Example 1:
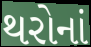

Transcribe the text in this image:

થરોનાં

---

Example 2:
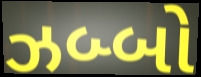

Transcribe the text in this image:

ઝબ્બો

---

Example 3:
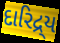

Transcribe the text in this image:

દારિદ્ર્ય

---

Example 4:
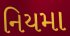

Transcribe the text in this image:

નિયમા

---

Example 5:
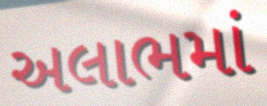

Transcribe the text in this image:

અલાભમાં